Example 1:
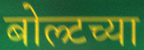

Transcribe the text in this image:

बोल्टच्या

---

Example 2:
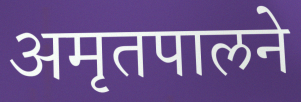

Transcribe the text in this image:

अमृतपालने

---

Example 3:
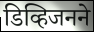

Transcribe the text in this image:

डिव्हिजनने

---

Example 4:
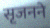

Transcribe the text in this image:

सृजनने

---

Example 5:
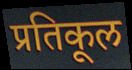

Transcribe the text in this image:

प्रतिकूल